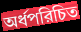
অর্ধপরিচিত